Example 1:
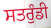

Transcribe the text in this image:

ਸਤਰੁੰਡੀ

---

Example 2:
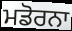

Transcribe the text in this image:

ਮਡੋਰਨਾ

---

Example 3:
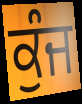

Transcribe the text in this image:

ਕੁੰਜ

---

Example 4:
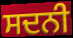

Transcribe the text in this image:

ਸਦਨੀ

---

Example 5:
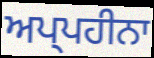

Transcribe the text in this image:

ਅਪ੍ਪਹੀਨਾ